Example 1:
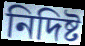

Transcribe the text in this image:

নিদিষ্ট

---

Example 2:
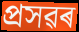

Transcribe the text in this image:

প্ৰসৱৰ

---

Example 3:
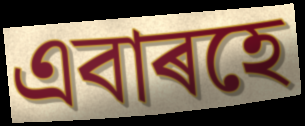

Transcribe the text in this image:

এবাৰহে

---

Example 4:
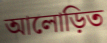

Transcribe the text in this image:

আলোড়িত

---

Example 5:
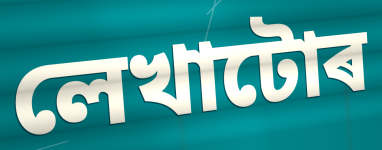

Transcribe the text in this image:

লেখাটোৰ